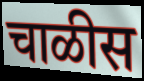
चाळीस